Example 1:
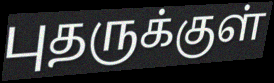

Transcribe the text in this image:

புதருக்குள்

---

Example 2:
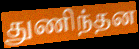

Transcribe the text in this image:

துணிந்தன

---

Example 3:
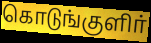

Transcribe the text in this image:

கொடுங்குளிர்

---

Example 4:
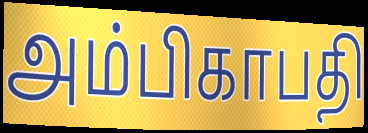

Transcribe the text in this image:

அம்பிகாபதி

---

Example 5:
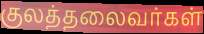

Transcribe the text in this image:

குலத்தலைவர்கள்